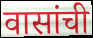
वासांची